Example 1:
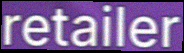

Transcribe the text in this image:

retailer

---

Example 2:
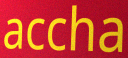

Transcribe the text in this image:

accha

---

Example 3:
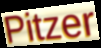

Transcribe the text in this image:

Pitzer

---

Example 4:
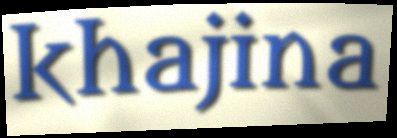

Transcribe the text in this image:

khajina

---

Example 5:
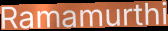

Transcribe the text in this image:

Ramamurthi